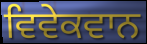
ਵਿਵੇਕਵਾਨ